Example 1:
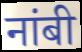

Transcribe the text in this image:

नांबी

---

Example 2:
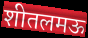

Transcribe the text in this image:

शीतलमऊ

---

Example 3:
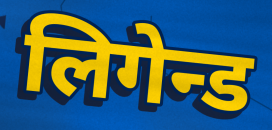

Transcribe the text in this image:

लिगेन्ड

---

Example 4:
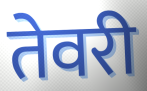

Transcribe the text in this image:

तेवरी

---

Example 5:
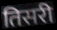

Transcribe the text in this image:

तिसरी